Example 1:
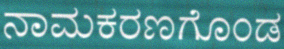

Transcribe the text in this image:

ನಾಮಕರಣಗೊಂಡ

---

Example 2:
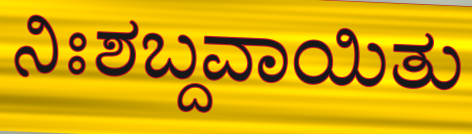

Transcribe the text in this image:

ನಿಃಶಬ್ದವಾಯಿತು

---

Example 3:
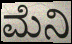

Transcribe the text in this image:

ಮೆನಿ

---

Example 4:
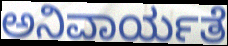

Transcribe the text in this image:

ಅನಿವಾರ್ಯತೆ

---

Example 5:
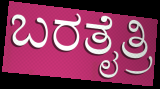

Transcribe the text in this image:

ಬರತೈತ್ರಿ